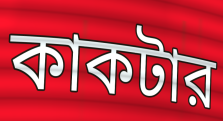
কাকটার